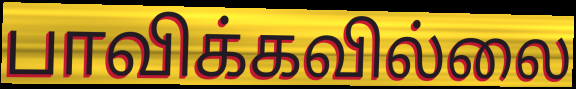
பாவிக்கவில்லை